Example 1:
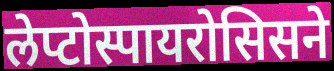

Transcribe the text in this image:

लेप्टोस्पायरोसिसने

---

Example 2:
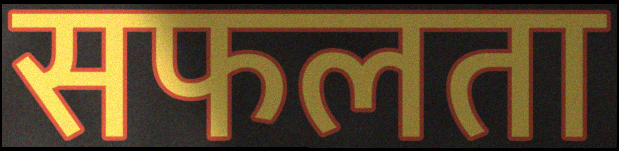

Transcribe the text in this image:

सफलता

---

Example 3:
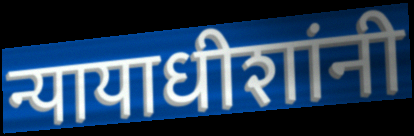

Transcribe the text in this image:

न्यायाधीशांनी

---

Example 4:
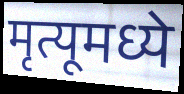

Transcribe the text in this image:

मृत्यूमध्ये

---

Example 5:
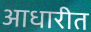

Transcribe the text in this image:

आधारीत